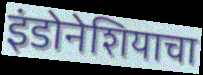
इंडोनेशियाचा